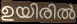
ഉയിരിൽ